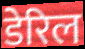
डेरिल